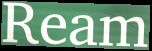
Ream